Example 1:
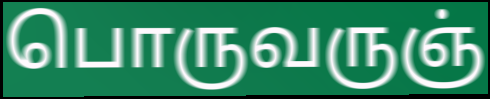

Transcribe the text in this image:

பொருவருஞ்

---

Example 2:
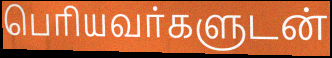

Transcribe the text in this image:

பெரியவர்களுடன்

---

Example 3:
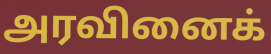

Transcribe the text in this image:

அரவினைக்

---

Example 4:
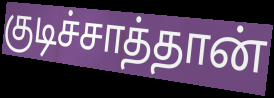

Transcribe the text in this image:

குடிச்சாத்தான்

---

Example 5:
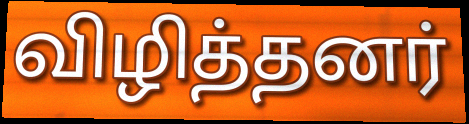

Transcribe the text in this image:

விழித்தனர்